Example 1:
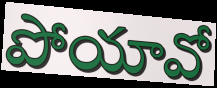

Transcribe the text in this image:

పోయావో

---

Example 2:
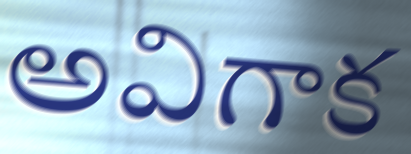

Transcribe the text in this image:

అవిగాక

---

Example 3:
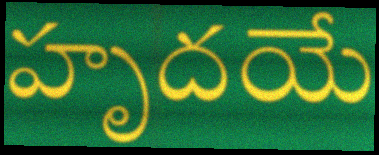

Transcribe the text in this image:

హృదయే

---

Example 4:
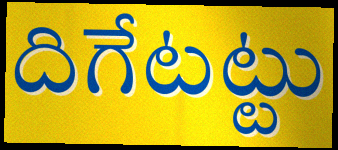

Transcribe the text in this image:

దిగేటట్టు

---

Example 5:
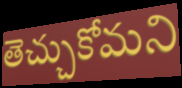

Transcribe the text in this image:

తెచ్చుకోమని